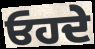
ਓਹਦੇ